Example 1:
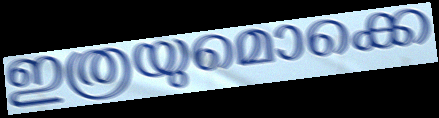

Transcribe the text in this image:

ഇത്രയുമൊക്കെ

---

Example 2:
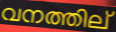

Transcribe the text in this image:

വനത്തില്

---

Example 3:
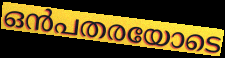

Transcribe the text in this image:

ഒൻപതരയോടെ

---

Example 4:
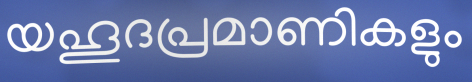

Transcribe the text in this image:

യഹൂദപ്രമാണികളും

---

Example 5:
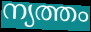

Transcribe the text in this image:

ന്യത്തം